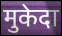
मुकेदा